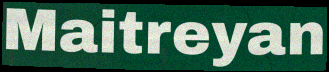
Maitreyan